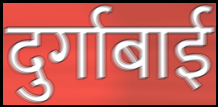
दुर्गाबाई